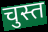
चुस्त